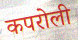
कपरोली